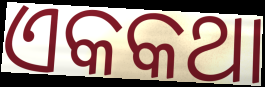
ଏକକଥା